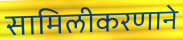
सामिलीकरणाने